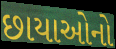
છાયાઓનો